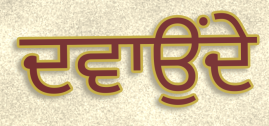
ਦਵਾਉਂਦੇ